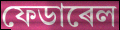
ফেডাৰেল